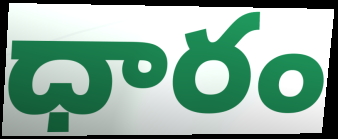
ధారం